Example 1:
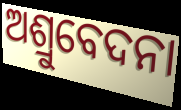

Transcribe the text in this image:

ଅଶ୍ରୁବେଦନା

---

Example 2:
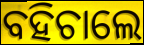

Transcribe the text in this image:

ବହିଚାଲେ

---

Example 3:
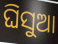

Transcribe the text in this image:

ଘିସୁଆ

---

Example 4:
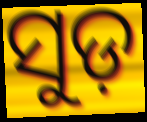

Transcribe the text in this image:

ସୁଡ଼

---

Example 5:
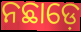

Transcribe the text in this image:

ନଛାଡ଼େ